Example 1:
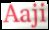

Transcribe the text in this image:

Aaji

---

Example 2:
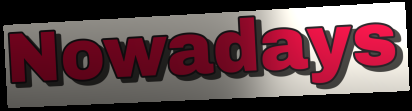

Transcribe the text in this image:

Nowadays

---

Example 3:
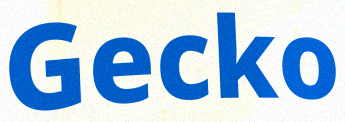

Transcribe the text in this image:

Gecko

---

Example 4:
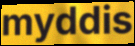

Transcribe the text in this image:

myddis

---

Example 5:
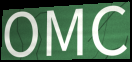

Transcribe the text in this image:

OMC